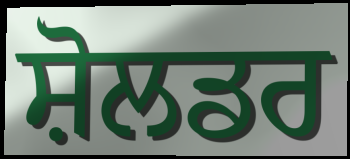
ਸ਼ੋਲਡਰ